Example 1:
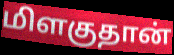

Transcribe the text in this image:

மிளகுதான்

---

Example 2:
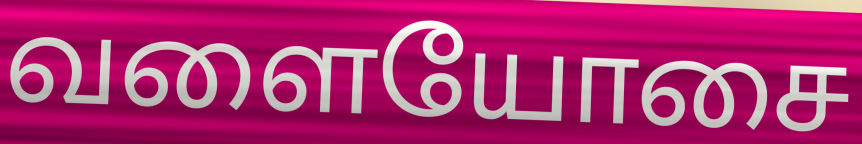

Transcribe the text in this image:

வளையோசை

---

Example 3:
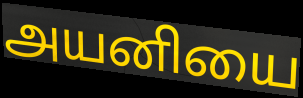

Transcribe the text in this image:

அயனியை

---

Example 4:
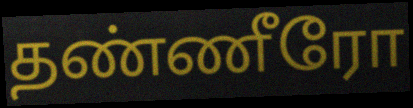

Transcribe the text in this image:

தண்ணீரோ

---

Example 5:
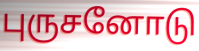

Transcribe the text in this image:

புருசனோடு